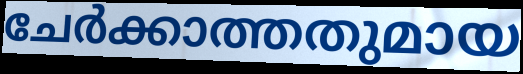
ചേർക്കാത്തതുമായ